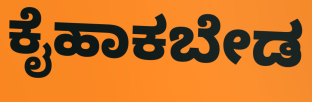
ಕೈಹಾಕಬೇಡ